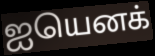
ஐயெனக்